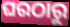
ଘରଠାରୁ